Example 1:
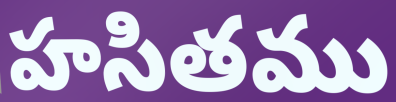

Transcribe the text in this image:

హసితము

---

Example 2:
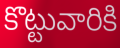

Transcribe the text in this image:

కొట్టువారికి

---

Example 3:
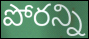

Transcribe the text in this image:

పోరన్ని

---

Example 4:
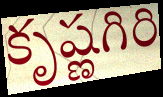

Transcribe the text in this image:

కృష్ణగిరి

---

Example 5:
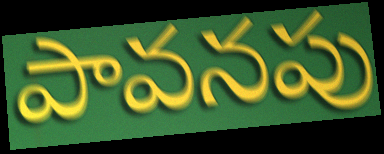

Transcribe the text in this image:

పావనపు